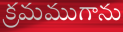
క్రమముగాను